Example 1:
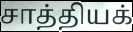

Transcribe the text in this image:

சாத்தியக்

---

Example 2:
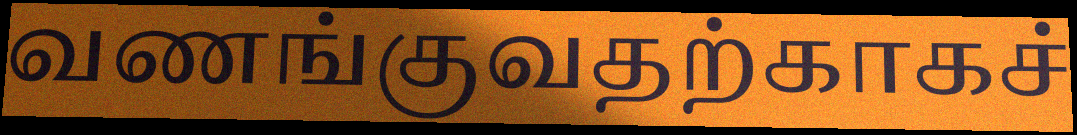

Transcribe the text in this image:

வணங்குவதற்காகச்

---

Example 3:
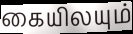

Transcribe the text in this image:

கையிலயும்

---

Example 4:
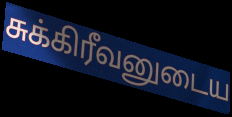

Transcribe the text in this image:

சுக்கிரீவனுடைய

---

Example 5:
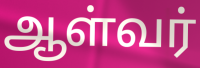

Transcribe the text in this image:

ஆள்வர்